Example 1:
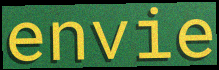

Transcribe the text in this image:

envie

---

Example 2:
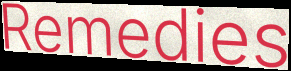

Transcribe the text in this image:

Remedies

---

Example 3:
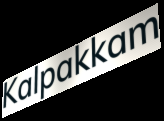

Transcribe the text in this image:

Kalpakkam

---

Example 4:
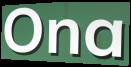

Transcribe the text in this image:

Ona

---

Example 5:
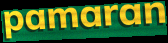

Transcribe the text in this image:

pamaran